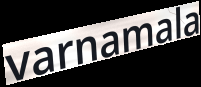
varnamala